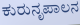
ಕುರುನೃಪಾಲನ